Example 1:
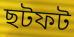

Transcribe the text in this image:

ছটফট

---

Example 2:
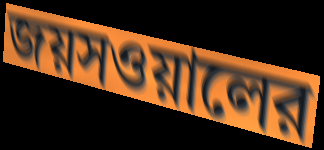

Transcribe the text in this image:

জয়সওয়ালের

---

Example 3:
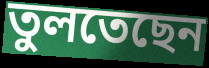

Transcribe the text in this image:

তুলতেছেন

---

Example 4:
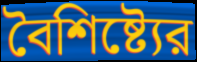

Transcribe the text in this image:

বৈশিষ্ট্যের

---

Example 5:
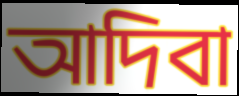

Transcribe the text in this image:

আদিবা